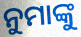
ନୁମାଙ୍କୁ